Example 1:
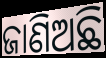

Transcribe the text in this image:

ଜାଣିଅଛି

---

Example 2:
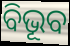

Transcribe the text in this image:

ବିଭୂବ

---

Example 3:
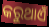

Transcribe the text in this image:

କରୁଥାଏଁ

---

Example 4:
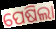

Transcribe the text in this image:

ପେଷିଲା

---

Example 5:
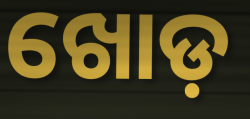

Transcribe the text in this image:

ଖୋଡ଼